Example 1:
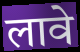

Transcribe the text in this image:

लावे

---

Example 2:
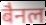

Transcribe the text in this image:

बैनल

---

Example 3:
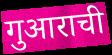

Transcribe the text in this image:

गुआराची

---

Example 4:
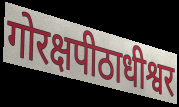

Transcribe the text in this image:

गोरक्षपीठाधीश्वर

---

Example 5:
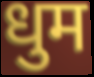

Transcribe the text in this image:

धुम